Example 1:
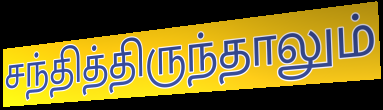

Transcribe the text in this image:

சந்தித்திருந்தாலும்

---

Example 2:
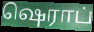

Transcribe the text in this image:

ஷெராப்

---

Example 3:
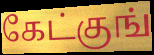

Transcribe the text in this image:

கேட்குங்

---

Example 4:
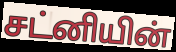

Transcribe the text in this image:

சட்னியின்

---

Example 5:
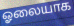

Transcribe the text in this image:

ஓலையாக